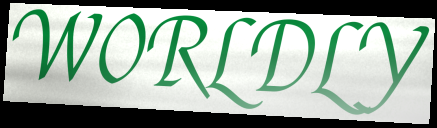
WORLDLY